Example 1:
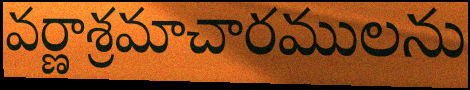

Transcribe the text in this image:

వర్ణాశ్రమాచారములను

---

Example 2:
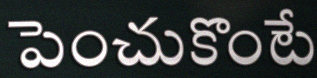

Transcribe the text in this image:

పెంచుకొంటే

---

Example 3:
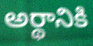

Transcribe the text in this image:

అర్థానికి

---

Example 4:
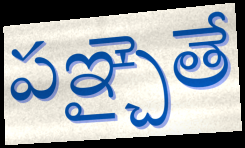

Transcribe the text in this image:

పఞ్చైతే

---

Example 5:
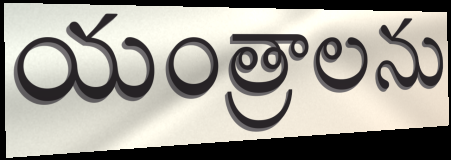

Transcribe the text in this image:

యంత్రాలను